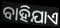
ବାହିଯାଏ